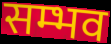
सम्भव